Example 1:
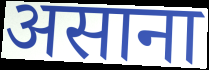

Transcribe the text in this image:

असाना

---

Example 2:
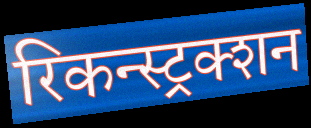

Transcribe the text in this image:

रिकन्स्ट्रक्शन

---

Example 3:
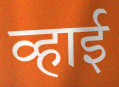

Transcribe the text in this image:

व्हाई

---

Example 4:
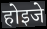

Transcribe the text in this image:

होइजे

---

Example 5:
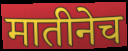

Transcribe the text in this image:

मातीनेच